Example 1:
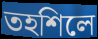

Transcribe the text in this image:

তহশিলে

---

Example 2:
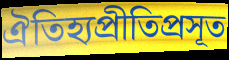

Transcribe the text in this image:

ঐতিহ্যপ্রীতিপ্রসূত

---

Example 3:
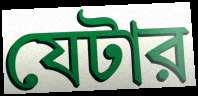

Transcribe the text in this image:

যেটার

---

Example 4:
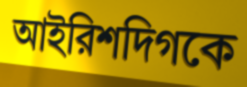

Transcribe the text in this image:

আইরিশদিগকে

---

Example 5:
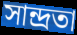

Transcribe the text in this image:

সান্দ্রতা